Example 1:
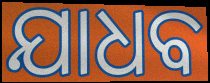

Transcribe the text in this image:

ଯାଧବ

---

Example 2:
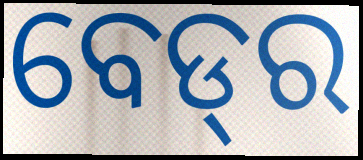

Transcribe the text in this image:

ବେଡ୍‍ର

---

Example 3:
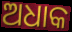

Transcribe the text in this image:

ଅଧାକ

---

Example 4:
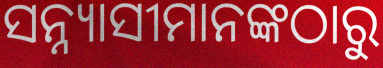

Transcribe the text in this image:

ସନ୍ନ୍ୟାସୀମାନଙ୍କଠାରୁ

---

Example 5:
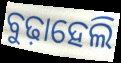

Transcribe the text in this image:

ବୁଢ଼ାହେଲି